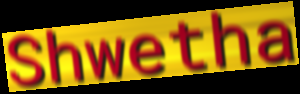
Shwetha